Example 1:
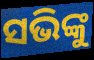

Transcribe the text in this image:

ସଭିଙ୍କୁ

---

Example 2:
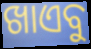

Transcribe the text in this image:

ଖାଏବୁ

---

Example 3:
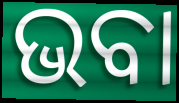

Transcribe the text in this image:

ଭବା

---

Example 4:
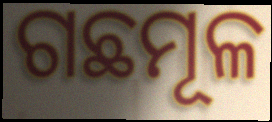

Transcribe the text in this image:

ଗଛମୂଳ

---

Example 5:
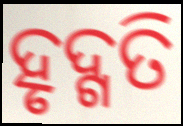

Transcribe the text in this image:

ହୃଦ୍ଗତି